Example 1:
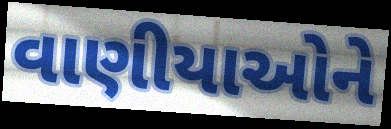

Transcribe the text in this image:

વાણીયાઓને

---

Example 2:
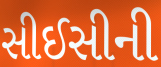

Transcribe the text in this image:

સીઈસીની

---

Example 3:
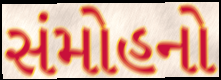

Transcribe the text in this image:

સંમોહનો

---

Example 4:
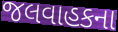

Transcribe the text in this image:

જલવાહકના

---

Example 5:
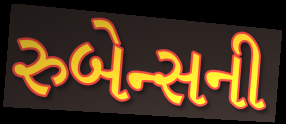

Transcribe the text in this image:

રુબેન્સની